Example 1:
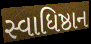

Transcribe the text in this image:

સ્વાધિષ્ઠાન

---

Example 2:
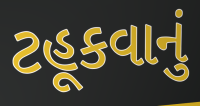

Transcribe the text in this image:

ટહૂકવાનું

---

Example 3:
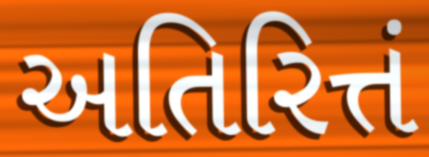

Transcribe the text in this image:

અતિરિત્તં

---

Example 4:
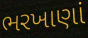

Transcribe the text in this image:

ભરખાણાં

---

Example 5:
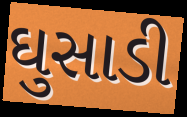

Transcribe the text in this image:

ઘુસાડી